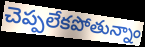
చెప్పలేకపోతున్నాం